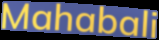
Mahabali